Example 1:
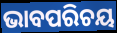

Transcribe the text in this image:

ଭାବପରିଚୟ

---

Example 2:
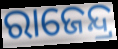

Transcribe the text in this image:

ରାଜେନ୍ଦ୍ର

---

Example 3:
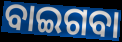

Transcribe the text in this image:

ବାଇଗବା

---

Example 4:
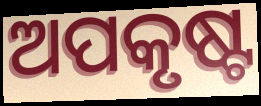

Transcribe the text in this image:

ଅପକୃଷ୍ଟ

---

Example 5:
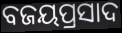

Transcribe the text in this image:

ବଜୟପ୍ରସାଦ